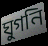
ঘুগনি